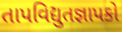
તાપવિદ્યુતજ્ઞાપકો